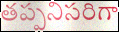
తప్పనిసరిగా